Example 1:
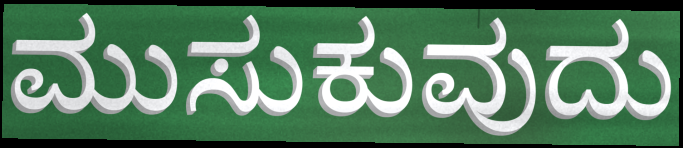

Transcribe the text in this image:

ಮುಸುಕುವುದು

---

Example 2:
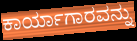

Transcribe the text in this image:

ಕಾರ್ಯಾಗಾರವನ್ನು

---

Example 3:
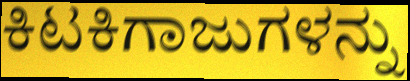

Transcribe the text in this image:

ಕಿಟಕಿಗಾಜುಗಳನ್ನು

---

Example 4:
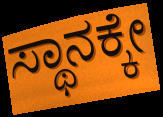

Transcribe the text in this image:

ಸ್ಥಾನಕ್ಕೇ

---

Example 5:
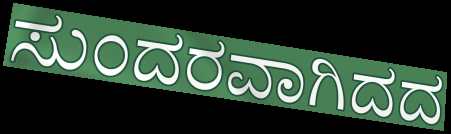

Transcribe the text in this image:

ಸುಂದರವಾಗಿದದ